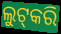
ଲୁଟ୍‌କରି